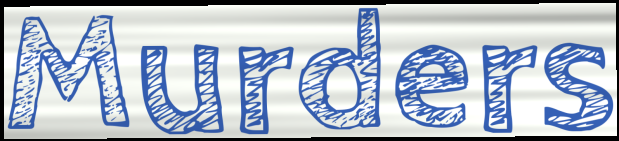
Murders